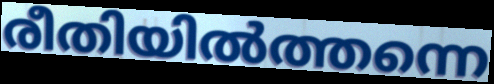
രീതിയിൽത്തന്നെ